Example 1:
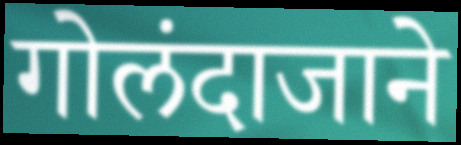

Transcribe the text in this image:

गोलंदाजाने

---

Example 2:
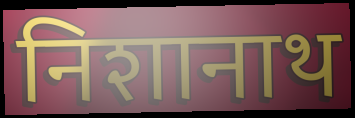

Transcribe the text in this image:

निशानाथ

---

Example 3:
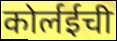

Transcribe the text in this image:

कोर्लईची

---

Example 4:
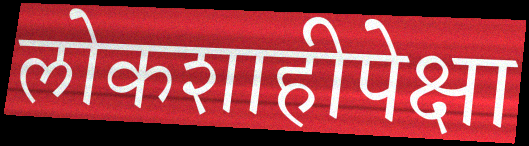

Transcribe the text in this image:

लोकशाहीपेक्षा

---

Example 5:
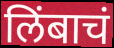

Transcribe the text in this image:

लिंबाचं